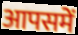
आपसमें